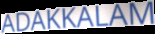
ADAKKALAM